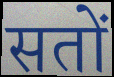
सतों